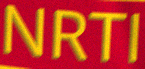
NRTI